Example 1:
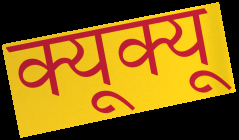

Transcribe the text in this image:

क्यूक्यू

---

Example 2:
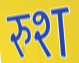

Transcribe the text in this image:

रुश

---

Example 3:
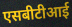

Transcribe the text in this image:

एसबीटीआई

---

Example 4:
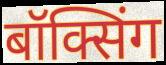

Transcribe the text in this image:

बॉक्सिंग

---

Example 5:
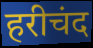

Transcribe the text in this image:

हरीचंद